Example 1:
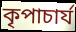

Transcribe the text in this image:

কৃপাচার্য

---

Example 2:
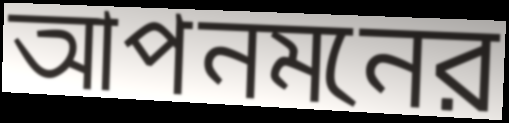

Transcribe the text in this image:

আপনমনের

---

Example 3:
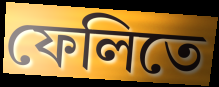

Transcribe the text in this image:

ফেলিতে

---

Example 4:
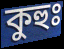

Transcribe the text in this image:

কুহুঃ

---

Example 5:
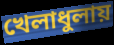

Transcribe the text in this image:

খেলাধুলায়